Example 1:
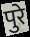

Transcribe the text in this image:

पुरे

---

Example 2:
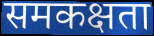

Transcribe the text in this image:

समकक्षता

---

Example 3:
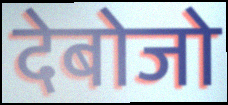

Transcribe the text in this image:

देबोजो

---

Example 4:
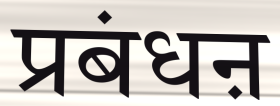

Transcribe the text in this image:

प्रबंधऩ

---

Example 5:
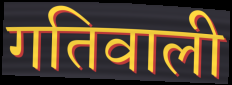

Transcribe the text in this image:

गतिवाली